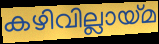
കഴിവില്ലായ്മ